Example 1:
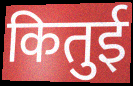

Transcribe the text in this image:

कितुई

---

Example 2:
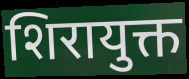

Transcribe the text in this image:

शिरायुक्त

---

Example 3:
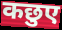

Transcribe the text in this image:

कछुए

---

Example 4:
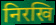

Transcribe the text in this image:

निरखि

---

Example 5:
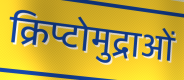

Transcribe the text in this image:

क्रिप्टोमुद्राओं